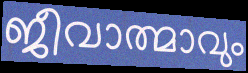
ജീവാത്മാവും